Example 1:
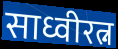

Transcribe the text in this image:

साध्वीरत्न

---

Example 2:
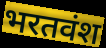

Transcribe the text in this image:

भरतवंश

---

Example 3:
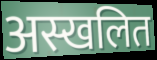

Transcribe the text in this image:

अस्खलित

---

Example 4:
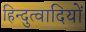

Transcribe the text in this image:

हिन्दुत्वादियों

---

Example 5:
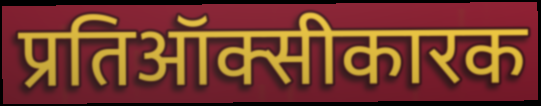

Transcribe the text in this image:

प्रतिऑक्सीकारक